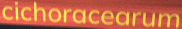
cichoracearum